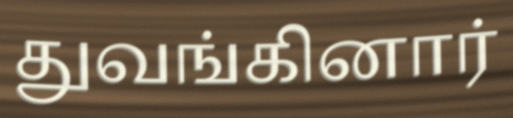
துவங்கினார்